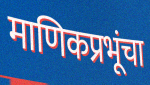
माणिकप्रभूंचा